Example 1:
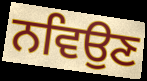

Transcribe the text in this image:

ਨਵਿਉਣ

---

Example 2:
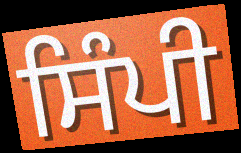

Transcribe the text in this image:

ਸਿੰਪੀ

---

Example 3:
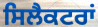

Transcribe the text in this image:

ਸਿਲੈਕਟਰਾਂ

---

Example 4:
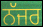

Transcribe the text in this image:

ਨੱਜਰ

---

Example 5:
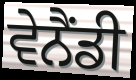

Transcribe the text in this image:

ਵੇਨੈਂਡੀ